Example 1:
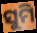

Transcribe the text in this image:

ସୁମି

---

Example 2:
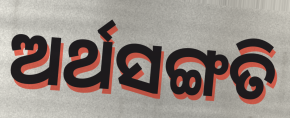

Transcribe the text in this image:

ଅର୍ଥସଙ୍ଗତି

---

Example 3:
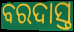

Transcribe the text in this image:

ବରଦାସ୍ତ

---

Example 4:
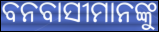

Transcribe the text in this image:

ବନବାସୀମାନଙ୍କୁ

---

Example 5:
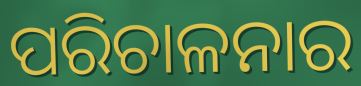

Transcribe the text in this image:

ପରିଚାଳନାର